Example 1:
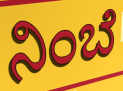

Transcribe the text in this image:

ನಿಂಬೆ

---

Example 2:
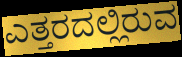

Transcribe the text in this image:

ಎತ್ತರದಲ್ಲಿರುವ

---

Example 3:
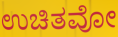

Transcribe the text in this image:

ಉಚಿತವೋ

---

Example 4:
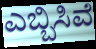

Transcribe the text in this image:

ಎಬ್ಬಿಸಿವೆ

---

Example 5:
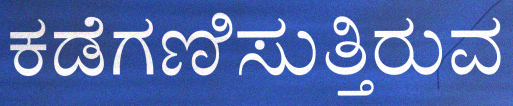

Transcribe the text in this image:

ಕಡೆಗಣಿಸುತ್ತಿರುವ